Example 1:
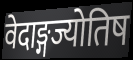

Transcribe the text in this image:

वेदाङ्गज्योतिष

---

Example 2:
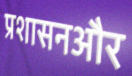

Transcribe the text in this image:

प्रशासनऔर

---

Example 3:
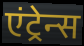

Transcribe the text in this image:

एंट्रेन्स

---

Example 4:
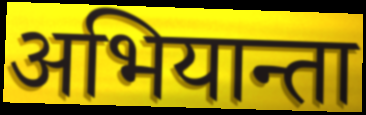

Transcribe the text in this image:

अभियान्ता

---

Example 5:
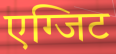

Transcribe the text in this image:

एग्जिट